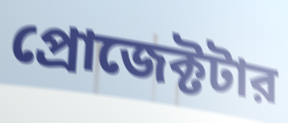
প্রোজেক্টটার